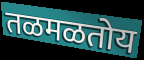
तळमळतोय